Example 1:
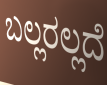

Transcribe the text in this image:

ಬಲ್ಲರಲ್ಲದೆ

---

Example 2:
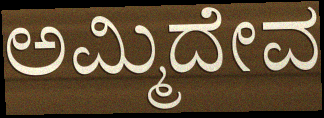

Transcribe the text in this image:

ಅಮ್ಮಿದೇವ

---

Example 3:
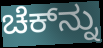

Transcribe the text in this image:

ಚೆಕ್‌ನ್ನು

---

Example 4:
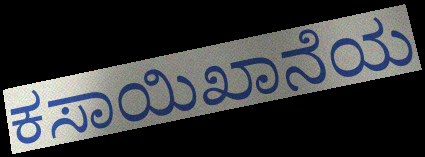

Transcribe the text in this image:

ಕಸಾಯಿಖಾನೆಯ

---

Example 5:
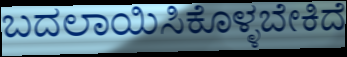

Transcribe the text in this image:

ಬದಲಾಯಿಸಿಕೊಳ್ಳಬೇಕಿದೆ